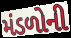
મંડળોની